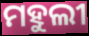
ମହୁଲୀ